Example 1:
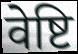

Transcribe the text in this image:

वेष्टि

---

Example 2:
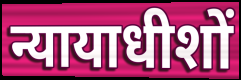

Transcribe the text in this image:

न्यायाधीशों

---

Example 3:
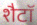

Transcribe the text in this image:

शैटॉ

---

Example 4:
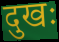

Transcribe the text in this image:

दुखः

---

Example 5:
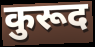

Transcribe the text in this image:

कुरूद